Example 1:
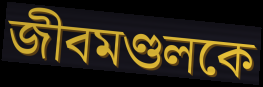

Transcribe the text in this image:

জীবমণ্ডলকে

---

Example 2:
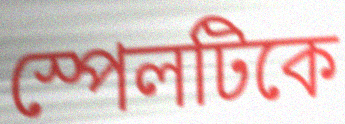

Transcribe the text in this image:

স্পেলটিকে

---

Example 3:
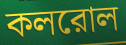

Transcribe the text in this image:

কলরোল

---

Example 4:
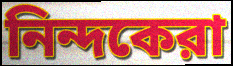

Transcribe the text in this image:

নিন্দকেরা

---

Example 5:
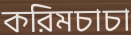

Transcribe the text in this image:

করিমচাচা